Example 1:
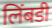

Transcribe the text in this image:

लिंबडी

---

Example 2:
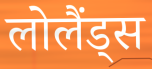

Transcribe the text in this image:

लोलैंड्स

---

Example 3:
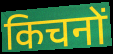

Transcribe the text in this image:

किचनों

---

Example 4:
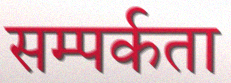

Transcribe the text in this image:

सम्पर्कता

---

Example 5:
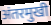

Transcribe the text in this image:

अंतरमुखी